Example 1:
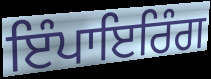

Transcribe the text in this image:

ਇੰਪਾਇਰਿੰਗ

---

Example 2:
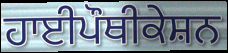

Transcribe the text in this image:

ਹਾਈਪੌਥੀਕੇਸ਼ਨ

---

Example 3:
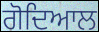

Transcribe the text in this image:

ਗੋਦਿਆਲ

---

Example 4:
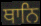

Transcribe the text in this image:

ਥਾਨਿ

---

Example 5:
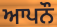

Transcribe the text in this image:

ਆਪਨੌ